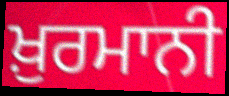
ਖ਼ੁਰਮਾਨੀ